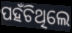
ପହଁଚିଥିଲେ